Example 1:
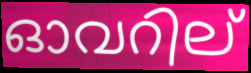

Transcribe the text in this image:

ഓവറില്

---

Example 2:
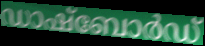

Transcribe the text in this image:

ഡാഷ്ബോർഡ്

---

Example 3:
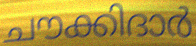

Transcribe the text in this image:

ചൗക്കിദാർ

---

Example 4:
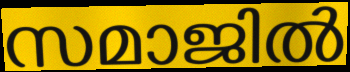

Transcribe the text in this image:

സമാജിൽ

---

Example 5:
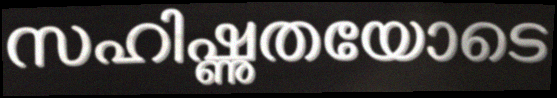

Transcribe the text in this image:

സഹിഷ്ണുതയോടെ